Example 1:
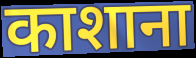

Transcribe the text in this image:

काशाना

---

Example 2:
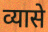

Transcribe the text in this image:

व्यासे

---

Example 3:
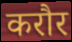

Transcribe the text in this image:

करौर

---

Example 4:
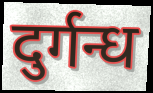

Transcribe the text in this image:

दुर्गन्ध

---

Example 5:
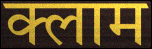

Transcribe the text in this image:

क्लाम